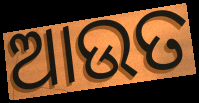
ଆଉତ